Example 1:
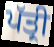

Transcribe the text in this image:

ਪੱਤ੍ਰੀ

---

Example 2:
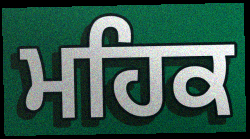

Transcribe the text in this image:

ਮਹਿਕ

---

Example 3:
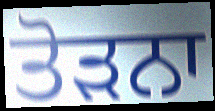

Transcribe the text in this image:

ਤੋੜਨਾ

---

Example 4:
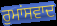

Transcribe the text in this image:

ਰੁਮਾਂਸਵਾਦ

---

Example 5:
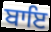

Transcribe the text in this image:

ਬਾਇ